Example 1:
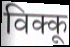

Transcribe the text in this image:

विक्कू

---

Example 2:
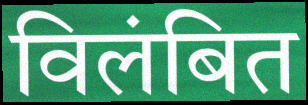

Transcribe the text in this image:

विलंबित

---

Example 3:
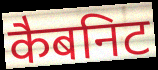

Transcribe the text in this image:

कैबनिट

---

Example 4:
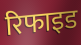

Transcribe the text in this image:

रिफाइड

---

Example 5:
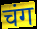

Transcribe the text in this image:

चंग